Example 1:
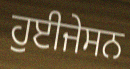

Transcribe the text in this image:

ਹੁਈਜੇਸਨ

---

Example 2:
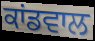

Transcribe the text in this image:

ਕਾਂਡਵਾਲ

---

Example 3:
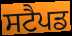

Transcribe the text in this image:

ਸਟੈਪਡ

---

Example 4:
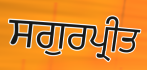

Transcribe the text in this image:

ਸਗੁਰਪ੍ਰੀਤ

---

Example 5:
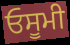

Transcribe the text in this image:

ਓਸੂਮੀ